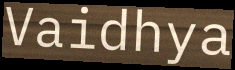
Vaidhya